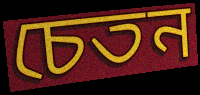
চেতন